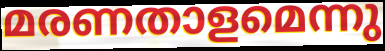
മരണതാളമെന്നു